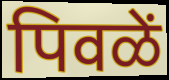
पिवळें